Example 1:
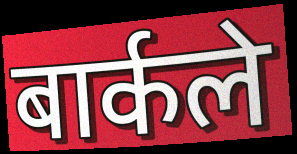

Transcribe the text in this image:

बार्कले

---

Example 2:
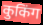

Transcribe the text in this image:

कुकिंग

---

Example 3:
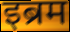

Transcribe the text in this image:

इब्रम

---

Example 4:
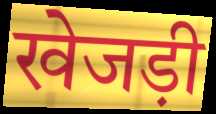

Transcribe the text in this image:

खेजड़ी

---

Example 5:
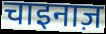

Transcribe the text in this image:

चाइनाज़